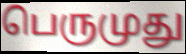
பெருமுது